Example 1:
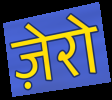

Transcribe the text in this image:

ज़ेरो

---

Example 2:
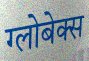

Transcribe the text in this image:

ग्लोबेक्स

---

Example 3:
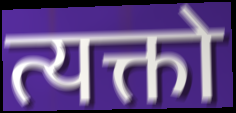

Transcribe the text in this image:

त्यक्तो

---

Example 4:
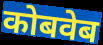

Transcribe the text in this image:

कोबवेब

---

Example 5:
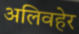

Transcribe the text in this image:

अलिवहेर